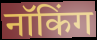
नॉकिंग